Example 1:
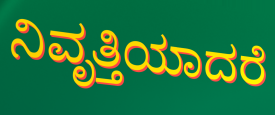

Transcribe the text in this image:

ನಿವೃತ್ತಿಯಾದರೆ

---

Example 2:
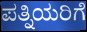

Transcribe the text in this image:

ಪತ್ನಿಯರಿಗೆ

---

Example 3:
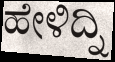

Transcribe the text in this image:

ಹೇಳಿದ್ನಿ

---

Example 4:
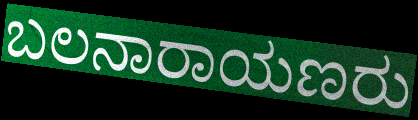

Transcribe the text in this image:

ಬಲನಾರಾಯಣರು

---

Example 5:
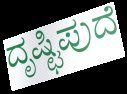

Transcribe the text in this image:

ದೃಷ್ಟಿಪುದೆ